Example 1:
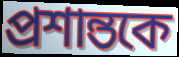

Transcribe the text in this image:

প্রশান্তকে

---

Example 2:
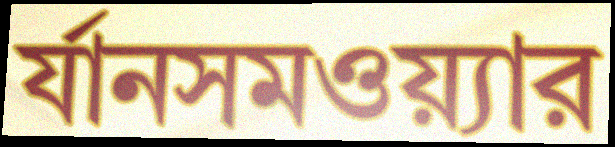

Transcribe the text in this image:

র্যানসমওয়্যার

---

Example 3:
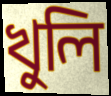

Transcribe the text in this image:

খুলি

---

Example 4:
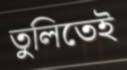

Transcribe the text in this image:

তুলিতেই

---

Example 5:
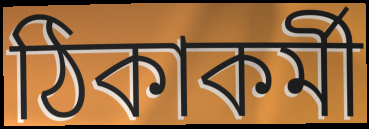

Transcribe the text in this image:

ঠিকাকর্মী